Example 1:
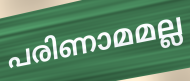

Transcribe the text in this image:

പരിണാമമല്ല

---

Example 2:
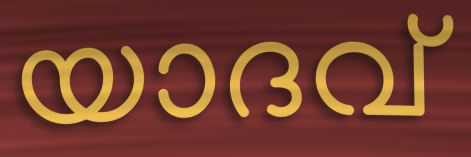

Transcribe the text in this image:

യാദവ്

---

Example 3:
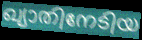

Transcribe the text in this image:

ഖ്യാതിനേടിയ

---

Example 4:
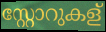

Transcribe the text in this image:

സ്റ്റോറുകള്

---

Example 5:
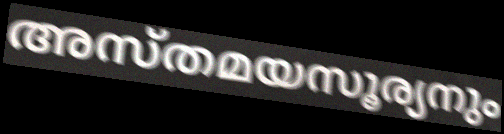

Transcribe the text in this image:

അസ്തമയസൂര്യനും